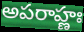
అపరాహ్ణః